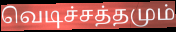
வெடிச்சத்தமும்